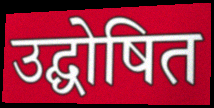
उद्घोषित